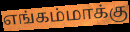
எங்கம்மாக்கு